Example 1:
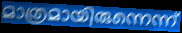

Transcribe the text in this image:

മാത്രമായിരുന്നെന്ന്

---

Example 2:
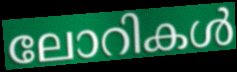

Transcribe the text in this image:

ലോറികൾ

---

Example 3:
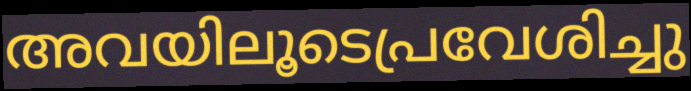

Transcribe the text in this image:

അവയിലൂടെപ്രവേശിച്ചു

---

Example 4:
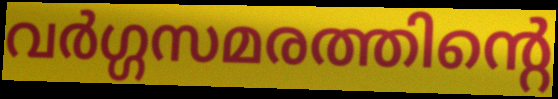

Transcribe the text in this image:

വർഗ്ഗസമരത്തിന്റെ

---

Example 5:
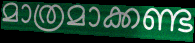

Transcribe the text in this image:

മാത്രമാക്കണ്ട